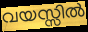
വയസ്സിൽ